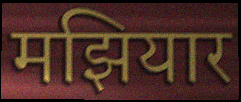
मझियार